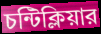
চন্টিক্লিয়ার